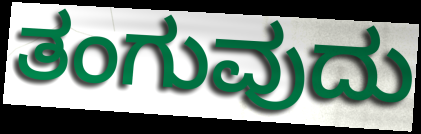
ತಂಗುವುದು